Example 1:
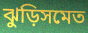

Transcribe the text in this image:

ঝুড়িসমেত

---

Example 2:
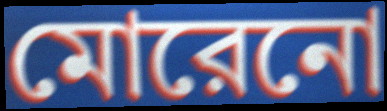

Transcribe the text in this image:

মোরেনো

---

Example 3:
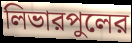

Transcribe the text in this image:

লিভারপুলের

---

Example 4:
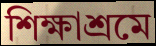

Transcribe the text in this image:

শিক্ষাশ্রমে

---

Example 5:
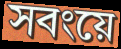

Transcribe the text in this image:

সবংয়ে